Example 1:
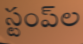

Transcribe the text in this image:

స్టంప్‌ల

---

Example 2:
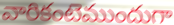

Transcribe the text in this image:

వారికంటెముందుగా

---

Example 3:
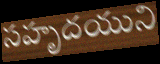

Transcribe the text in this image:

సహృదయుని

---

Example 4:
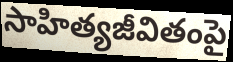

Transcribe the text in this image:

సాహిత్యజీవితంపై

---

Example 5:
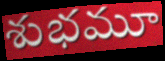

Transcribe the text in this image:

శుభమూ